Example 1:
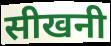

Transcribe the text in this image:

सीखनी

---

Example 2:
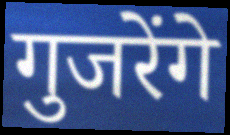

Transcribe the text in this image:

गुजरेंगे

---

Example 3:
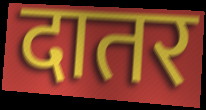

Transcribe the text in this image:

दातर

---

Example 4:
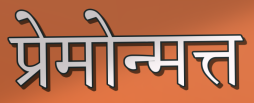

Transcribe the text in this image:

प्रेमोन्मत्त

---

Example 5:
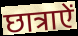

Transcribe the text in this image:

छात्राऐं